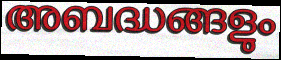
അബദ്ധങ്ങളും